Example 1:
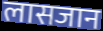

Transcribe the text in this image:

लासजान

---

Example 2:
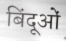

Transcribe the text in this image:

बिंदूओं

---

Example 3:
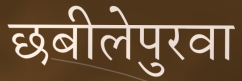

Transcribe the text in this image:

छबीलेपुरवा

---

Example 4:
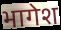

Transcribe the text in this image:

भागेश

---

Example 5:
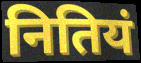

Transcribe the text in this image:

नितियं